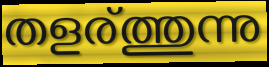
തളര്ത്തുന്നു